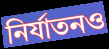
নির্যাতনও